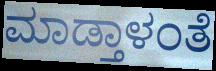
ಮಾಡ್ತಾಳಂತೆ